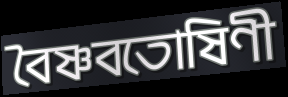
বৈষ্ণবতোষিণী